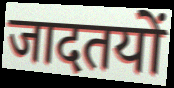
जादतयों